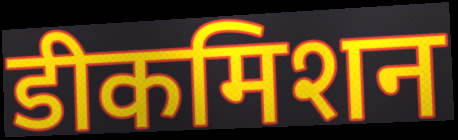
डीकमिशन